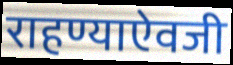
राहण्याऐवजी